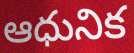
ఆధునిక